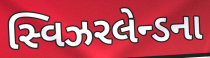
સ્વિઝરલેન્ડના